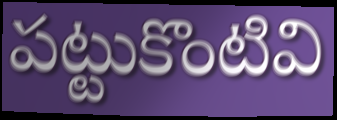
పట్టుకొంటివి